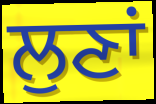
ਲੁਣਾਂ